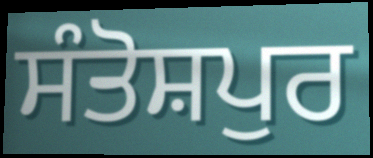
ਸੰਤੋਸ਼ਪੁਰ